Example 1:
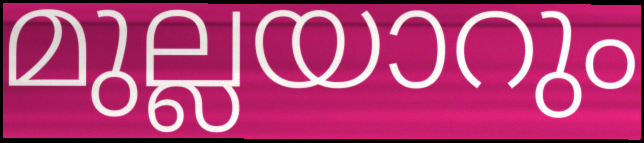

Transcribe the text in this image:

മുല്ലയാറും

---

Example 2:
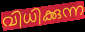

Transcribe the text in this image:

വിധിക്കുന്ന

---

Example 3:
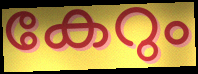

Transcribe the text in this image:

കേറും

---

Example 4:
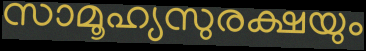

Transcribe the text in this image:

സാമൂഹ്യസുരക്ഷയും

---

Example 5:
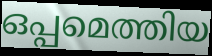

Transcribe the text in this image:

ഒപ്പമെത്തിയ